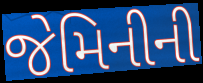
જેમિનીની